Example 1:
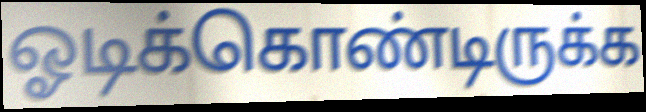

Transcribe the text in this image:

ஓடிக்கொண்டிருக்க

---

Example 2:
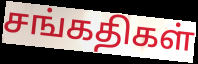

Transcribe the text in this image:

சங்கதிகள்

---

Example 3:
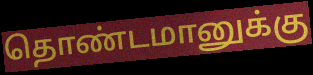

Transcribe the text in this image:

தொண்டமானுக்கு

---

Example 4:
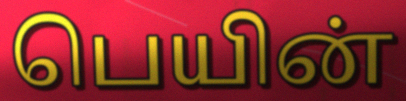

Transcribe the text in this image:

பெயின்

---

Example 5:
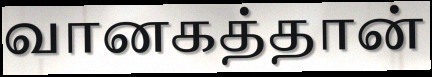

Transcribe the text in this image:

வானகத்தான்